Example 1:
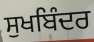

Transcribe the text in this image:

ਸੁਖਬਿੰਦਰ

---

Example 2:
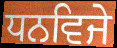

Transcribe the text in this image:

ਧਨਵਿਜੇ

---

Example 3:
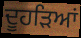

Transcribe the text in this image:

ਦੂਹੜਿਆਂ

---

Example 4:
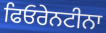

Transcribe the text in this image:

ਫਿਓਰੇਨਟੀਨਾ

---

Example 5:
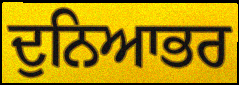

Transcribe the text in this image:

ਦੁਨਿਆਭਰ